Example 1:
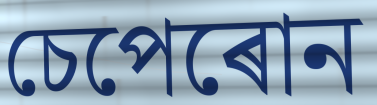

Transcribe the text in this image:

চেপেৰোন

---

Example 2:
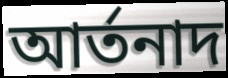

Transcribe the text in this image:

আৰ্তনাদ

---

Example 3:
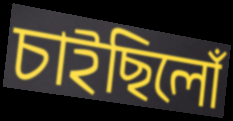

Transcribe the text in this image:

চাইছিলোঁ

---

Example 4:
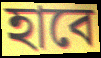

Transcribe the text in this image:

হাবে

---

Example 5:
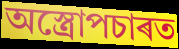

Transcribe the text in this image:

অস্ত্ৰোপচাৰত